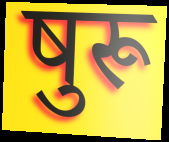
षुरू